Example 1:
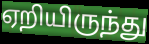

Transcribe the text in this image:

ஏறியிருந்து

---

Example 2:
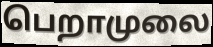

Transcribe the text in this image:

பெறாமுலை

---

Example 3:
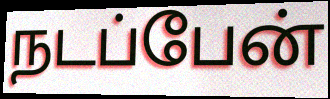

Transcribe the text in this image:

நடப்பேன்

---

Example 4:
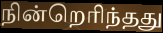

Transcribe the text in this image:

நின்றெரிந்தது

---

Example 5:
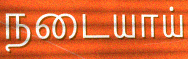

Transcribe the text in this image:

நடையாய்